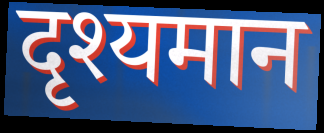
दृश्यमान